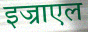
इज्राएल